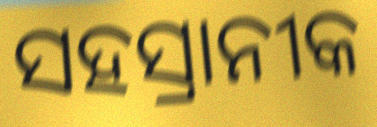
ସହସ୍ରାନୀକ